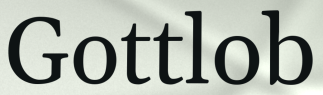
Gottlob